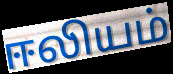
ஈலியம்